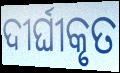
ଦୀର୍ଘୀକୃତ